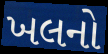
ખલનો